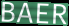
BAER